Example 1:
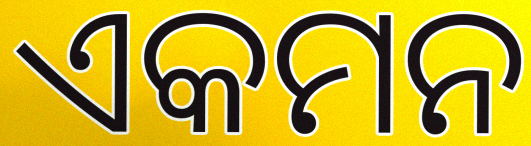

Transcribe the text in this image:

ଏକମନ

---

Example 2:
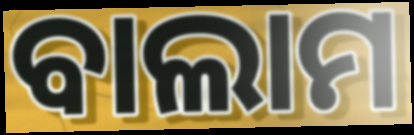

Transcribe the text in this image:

ବାଲାମ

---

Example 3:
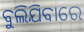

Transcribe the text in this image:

ବୁଲିଯିବାରେ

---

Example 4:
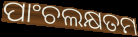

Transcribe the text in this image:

ପାଂଚଲକ୍ଷତମ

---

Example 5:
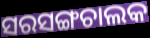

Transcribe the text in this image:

ସରସଙ୍ଗଚାଲକ